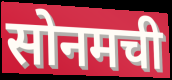
सोनमची